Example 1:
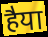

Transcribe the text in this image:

हैया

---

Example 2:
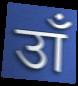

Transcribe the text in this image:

उाँ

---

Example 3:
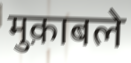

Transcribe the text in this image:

मुक़ाबले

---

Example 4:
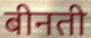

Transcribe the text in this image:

बीनती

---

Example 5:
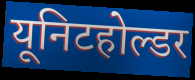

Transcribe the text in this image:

यूनिटहोल्डर